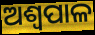
ଅଶ୍ୱପାଳ